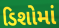
ડિશોમાં